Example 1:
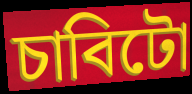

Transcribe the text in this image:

চাবিটো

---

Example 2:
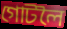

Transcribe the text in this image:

গোটলৈ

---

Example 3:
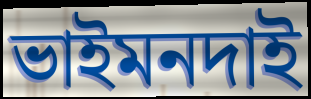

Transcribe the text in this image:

ভাইমনদাই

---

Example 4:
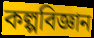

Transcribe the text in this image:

কল্পবিজ্ঞান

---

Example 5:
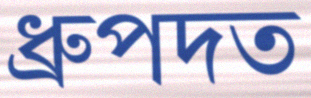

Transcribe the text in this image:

ধ্ৰুপদত